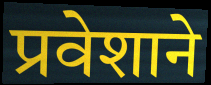
प्रवेशाने